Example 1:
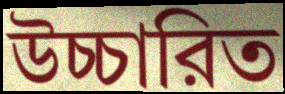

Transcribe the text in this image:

উচ্চারিত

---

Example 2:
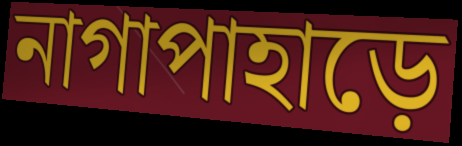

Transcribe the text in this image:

নাগাপাহাড়ে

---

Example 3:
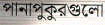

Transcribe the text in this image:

পানাপুকুরগুলো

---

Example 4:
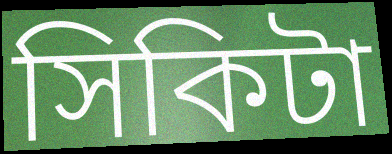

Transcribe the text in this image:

সিকিটা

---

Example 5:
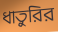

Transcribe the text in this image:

ধাতুরির